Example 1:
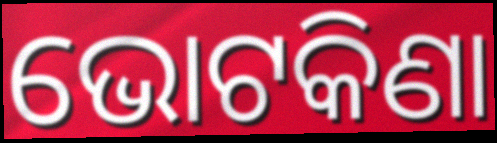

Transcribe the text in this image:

ଭୋଟକିଣା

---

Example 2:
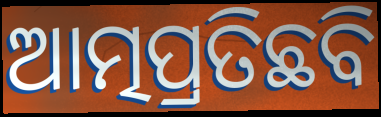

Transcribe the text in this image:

ଆତ୍ମପ୍ରତିଛବି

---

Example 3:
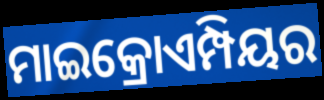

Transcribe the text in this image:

ମାଇକ୍ରୋଏମ୍ପିୟର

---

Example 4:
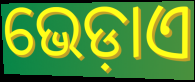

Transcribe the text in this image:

ଭେଡ଼ାଏ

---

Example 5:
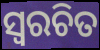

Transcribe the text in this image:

ସ୍ୱରଚିତ